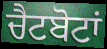
ਚੈਟਬੋਟਾਂ